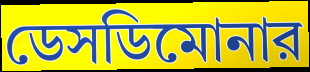
ডেসডিমোনার